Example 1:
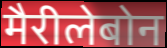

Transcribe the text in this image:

मैरीलेबोन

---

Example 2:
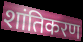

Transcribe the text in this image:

शांतिकरण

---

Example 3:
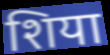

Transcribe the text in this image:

शिया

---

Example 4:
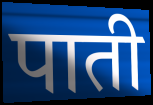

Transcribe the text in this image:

पाती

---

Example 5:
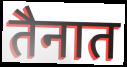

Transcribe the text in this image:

तैनात